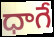
ధాగే